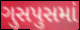
ગુસપુસમાં